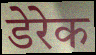
डेरेक